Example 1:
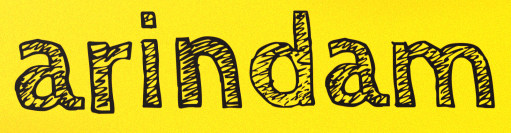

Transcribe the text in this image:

arindam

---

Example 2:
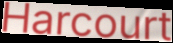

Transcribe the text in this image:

Harcourt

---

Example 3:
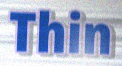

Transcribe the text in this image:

Thin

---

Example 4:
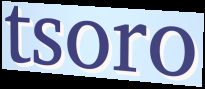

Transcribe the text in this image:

tsoro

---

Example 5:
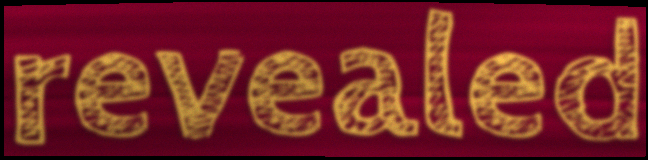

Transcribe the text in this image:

revealed